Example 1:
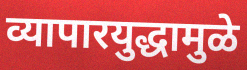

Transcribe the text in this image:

व्यापारयुद्धामुळे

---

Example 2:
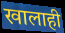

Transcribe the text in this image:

खालाही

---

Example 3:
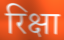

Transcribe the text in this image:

रिक्षा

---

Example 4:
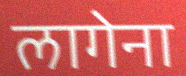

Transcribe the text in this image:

लागेना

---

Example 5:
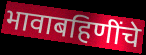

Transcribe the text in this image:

भावाबहिणींचे